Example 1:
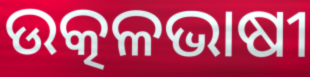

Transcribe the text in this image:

ଉତ୍କଳଭାଷୀ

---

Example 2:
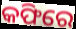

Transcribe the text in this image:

କଫିରେ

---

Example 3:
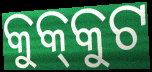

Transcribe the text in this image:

କୁକ୍‍କୁଟ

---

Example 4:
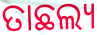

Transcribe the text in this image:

ତାଛଲ୍ୟ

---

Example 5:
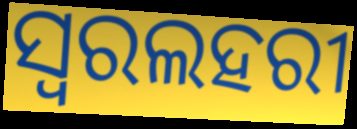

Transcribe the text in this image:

ସ୍ୱରଲହରୀ